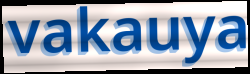
vakauya